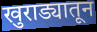
खुराड्यातून